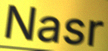
Nasr